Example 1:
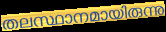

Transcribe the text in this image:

തലസ്ഥാനമായിരുന്നു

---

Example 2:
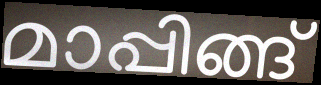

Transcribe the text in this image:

മാപ്പിങ്ങ്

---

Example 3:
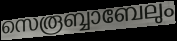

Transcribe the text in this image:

സെരൂബ്ബാബേലും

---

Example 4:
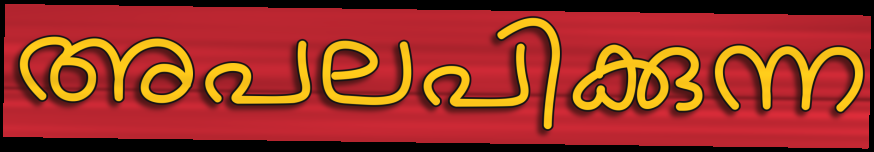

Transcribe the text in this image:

അപലപിക്കുന്ന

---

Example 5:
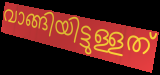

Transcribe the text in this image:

വാങ്ങിയിട്ടുള്ളത്